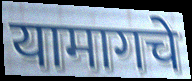
यामागचे